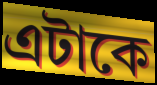
এটাকে